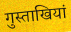
गुस्ताखियां